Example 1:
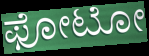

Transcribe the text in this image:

ಫೋಟೋ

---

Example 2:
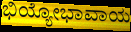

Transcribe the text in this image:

ಭಿಯ್ಯೋಭಾವಾಯ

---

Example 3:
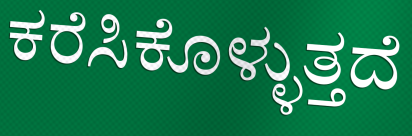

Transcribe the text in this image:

ಕರೆಸಿಕೊಳ್ಳುತ್ತದೆ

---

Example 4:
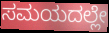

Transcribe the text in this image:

ಸಮಯದಲ್ಲೇ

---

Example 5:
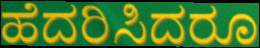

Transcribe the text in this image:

ಹೆದರಿಸಿದರೂ